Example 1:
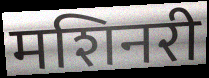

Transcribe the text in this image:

मशिनरी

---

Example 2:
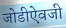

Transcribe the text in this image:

जोडीऐवजी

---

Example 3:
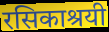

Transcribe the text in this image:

रसिकाश्रयी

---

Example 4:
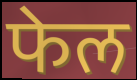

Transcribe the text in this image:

फेल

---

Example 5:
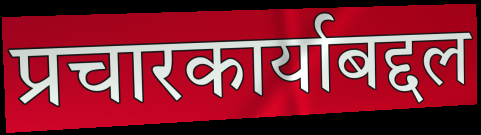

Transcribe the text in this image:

प्रचारकार्याबद्दल